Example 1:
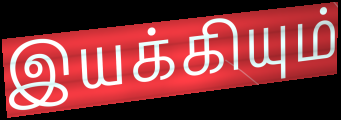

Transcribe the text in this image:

இயக்கியும்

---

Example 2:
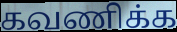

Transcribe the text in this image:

கவணிக்க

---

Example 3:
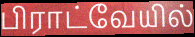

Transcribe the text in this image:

பிராட்வேயில்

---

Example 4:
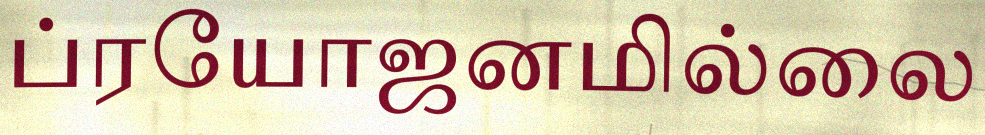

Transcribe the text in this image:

ப்ரயோஜனமில்லை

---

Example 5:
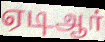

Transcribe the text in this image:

ஏடிஆர்